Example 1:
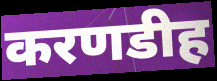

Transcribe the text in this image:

करणडीह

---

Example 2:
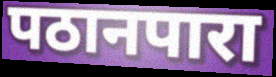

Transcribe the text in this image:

पठानपारा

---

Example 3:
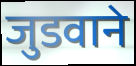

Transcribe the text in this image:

जुडवाने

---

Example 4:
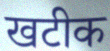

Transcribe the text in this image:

खटीक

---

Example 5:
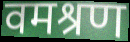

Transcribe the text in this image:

वमश्रण